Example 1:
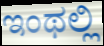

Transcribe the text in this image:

ಇಂಥಲ್ಲಿ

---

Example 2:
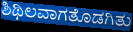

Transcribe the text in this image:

ಶಿಥಿಲವಾಗತೊಡಗಿತು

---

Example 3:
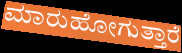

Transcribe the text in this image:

ಮಾರುಹೋಗುತ್ತಾರೆ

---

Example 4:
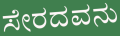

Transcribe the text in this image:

ಸೇರದವನು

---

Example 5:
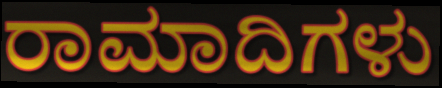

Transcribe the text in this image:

ರಾಮಾದಿಗಳು